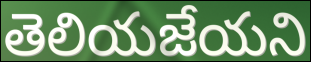
తెలియజేయని